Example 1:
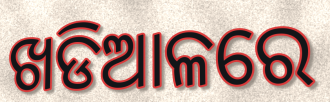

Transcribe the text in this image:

ଖଡିଆଳରେ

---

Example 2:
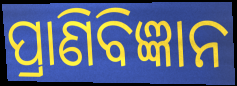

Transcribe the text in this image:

ପ୍ରାଣିବିଜ୍ଞାନ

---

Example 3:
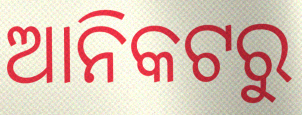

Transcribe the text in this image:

ଆନିକଟରୁ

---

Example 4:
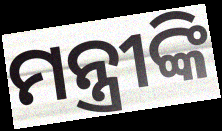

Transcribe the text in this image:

ମନ୍ତ୍ରୀଙ୍କି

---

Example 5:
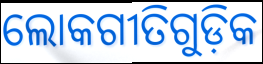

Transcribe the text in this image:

ଲୋକଗୀତିଗୁଡ଼ିକ